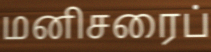
மனிசரைப்